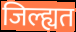
जिल्ह्यत